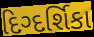
દિગ્દર્શિકા